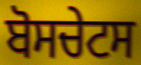
ਬੋਸਚੇਟਸ